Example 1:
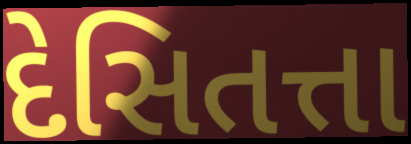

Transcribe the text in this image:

દેસિતત્તા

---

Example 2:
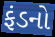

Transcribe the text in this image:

ફંડનો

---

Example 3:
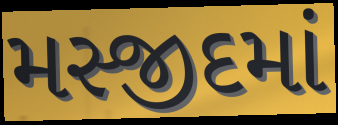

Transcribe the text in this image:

મસ્જીદમાં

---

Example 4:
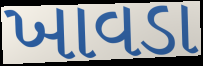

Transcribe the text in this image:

ખાવડા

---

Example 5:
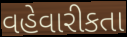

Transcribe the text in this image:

વહેવારીકતા